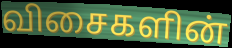
விசைகளின்